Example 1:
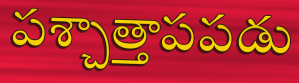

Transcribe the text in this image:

పశ్చాత్తాపపడు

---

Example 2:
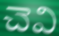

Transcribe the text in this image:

చెవి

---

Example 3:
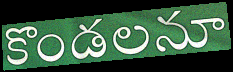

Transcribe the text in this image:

కొండలనూ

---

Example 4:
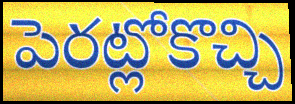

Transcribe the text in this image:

పెరట్లోకొచ్చి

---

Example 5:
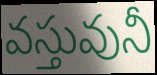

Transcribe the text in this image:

వస్తువునీ